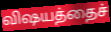
விஷயத்தைச்